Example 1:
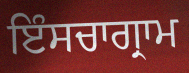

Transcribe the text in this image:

ਇੰਸਚਾਗ੍ਰਾਮ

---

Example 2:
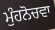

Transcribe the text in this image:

ਮੁੰਹਨੋਚਵਾ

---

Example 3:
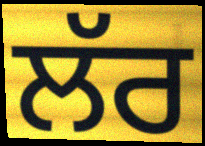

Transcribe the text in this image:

ਲੱਰ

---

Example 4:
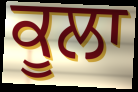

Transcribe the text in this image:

ਕੂਲਾ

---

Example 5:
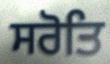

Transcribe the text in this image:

ਸਰੋਤਿ